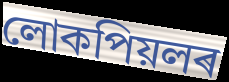
লোকপিয়লৰ